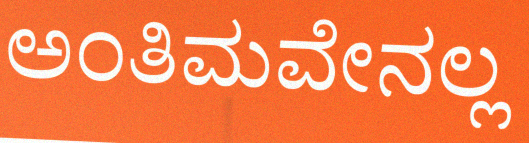
ಅಂತಿಮವೇನಲ್ಲ